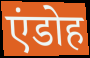
एंडोह